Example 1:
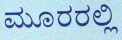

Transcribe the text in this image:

ಮೂರರಲ್ಲಿ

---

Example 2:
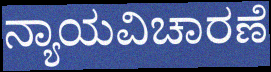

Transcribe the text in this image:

ನ್ಯಾಯವಿಚಾರಣೆ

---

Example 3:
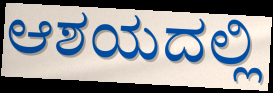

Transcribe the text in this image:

ಆಶಯದಲ್ಲಿ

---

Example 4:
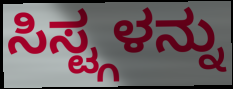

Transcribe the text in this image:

ಸಿಸ್ಟ್ಗಳನ್ನು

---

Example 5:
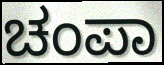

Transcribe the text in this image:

ಚಂಪಾ